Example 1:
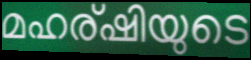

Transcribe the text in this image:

മഹര്ഷിയുടെ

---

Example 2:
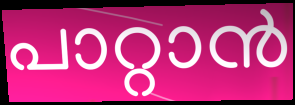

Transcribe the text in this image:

പാറ്റാൻ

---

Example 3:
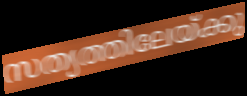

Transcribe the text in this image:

സത്യത്തിലേയ്ക്കു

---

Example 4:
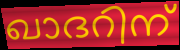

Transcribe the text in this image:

ഖാദറിന്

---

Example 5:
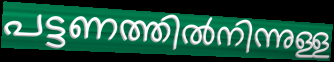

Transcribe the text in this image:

പട്ടണത്തിൽനിന്നുള്ള